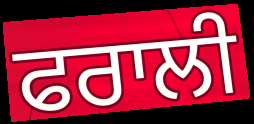
ਫਰਾਲੀ